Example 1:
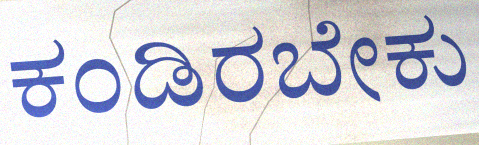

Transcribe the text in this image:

ಕಂಡಿರಬೇಕು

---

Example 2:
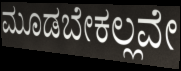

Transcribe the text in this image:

ಮೂಡಬೇಕಲ್ಲವೇ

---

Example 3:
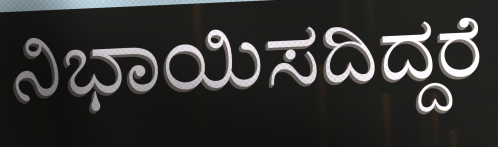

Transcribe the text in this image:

ನಿಭಾಯಿಸದಿದ್ದರೆ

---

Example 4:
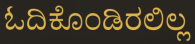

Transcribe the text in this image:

ಓದಿಕೊಂಡಿರಲಿಲ್ಲ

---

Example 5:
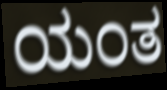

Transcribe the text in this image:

ಯಂತ